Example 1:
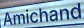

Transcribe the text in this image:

Amichand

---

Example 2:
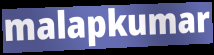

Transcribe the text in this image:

malapkumar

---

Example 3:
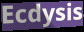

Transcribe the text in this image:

Ecdysis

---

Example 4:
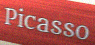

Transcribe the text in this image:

Picasso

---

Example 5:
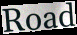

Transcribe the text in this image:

Road